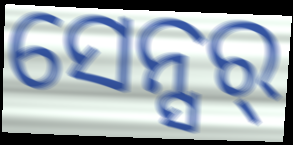
ସେନ୍ସର୍